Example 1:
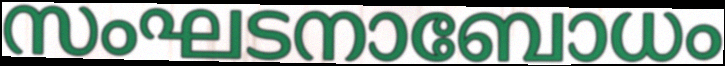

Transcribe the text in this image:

സംഘടനാബോധം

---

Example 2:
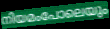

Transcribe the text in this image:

നിയമംപോലെയും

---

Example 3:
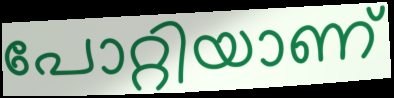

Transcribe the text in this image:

പോറ്റിയാണ്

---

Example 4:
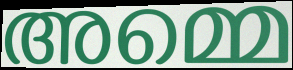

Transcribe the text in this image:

അമ്മെ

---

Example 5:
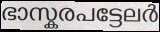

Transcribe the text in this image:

ഭാസ്കരപട്ടേലർ